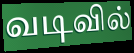
வடிவில்